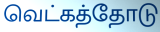
வெட்கத்தோடு